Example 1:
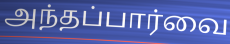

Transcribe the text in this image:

அந்தப்பார்வை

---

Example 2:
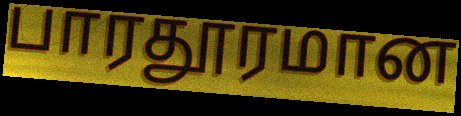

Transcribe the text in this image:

பாரதூரமான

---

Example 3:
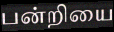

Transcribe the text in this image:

பன்றியை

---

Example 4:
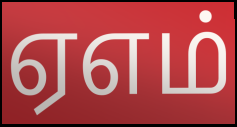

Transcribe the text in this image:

ஏஎம்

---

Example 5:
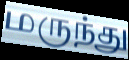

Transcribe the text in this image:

மருந்து